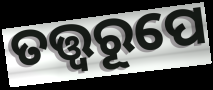
ତତ୍ତ୍ୱରୂପେ